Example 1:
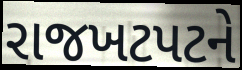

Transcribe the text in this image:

રાજખટપટને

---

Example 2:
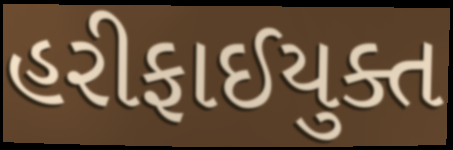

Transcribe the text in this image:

હરીફાઈયુક્ત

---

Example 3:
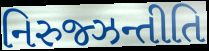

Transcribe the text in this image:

નિરુજ્ઝન્તીતિ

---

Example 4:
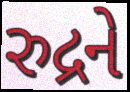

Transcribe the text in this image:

રુદ્રને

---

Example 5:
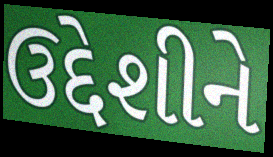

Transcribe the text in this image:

ઉદ્દેશીને